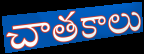
చాతకాలు